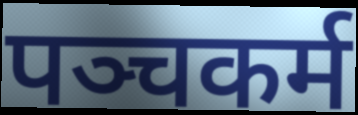
पञ्चकर्म